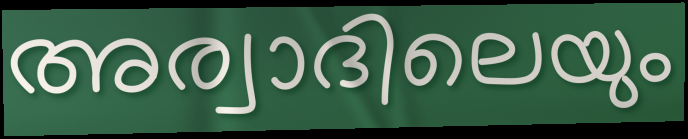
അര്വാദിലെയും